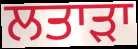
ਲਤਾੜਾ